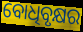
ବୋଧିବୃକ୍ଷର